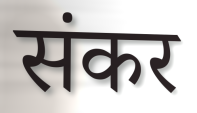
संकर